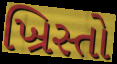
ખ્રિસ્તો